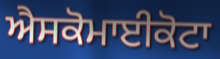
ਐਸਕੋਮਾਈਕੋਟਾ